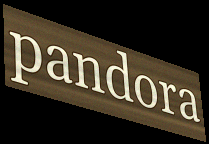
pandora